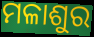
ମଳାଶୁର